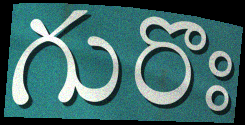
గురొః